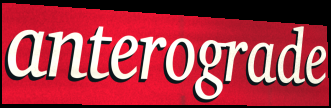
anterograde